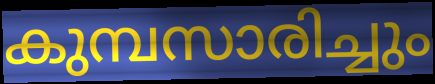
കുമ്പസാരിച്ചും